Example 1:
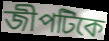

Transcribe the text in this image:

জীপটিকে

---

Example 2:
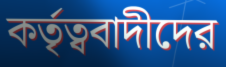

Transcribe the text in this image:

কর্তৃত্ববাদীদের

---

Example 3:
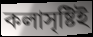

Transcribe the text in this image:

কলাসৃষ্টিই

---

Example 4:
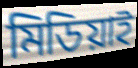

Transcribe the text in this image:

মিডিয়াই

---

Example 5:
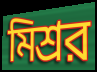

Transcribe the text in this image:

মিশ্রর